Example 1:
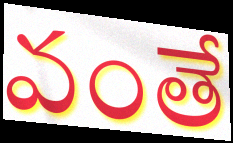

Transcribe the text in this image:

వంతే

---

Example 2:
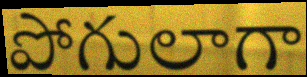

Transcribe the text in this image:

పోగులాగా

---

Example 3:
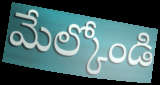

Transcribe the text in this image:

మేల్కోండి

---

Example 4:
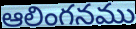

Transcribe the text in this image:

ఆలింగనము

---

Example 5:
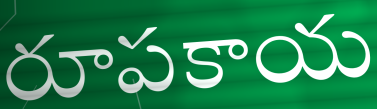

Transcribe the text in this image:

రూపకాయ